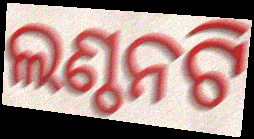
ଲଣ୍ଠନଟି